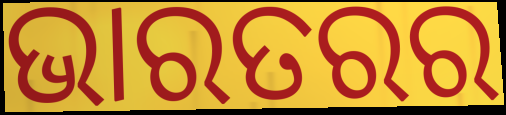
ଭାରତରର